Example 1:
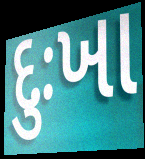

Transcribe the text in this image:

દુઃખા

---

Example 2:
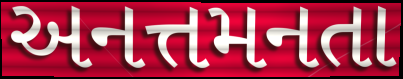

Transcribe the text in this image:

અનત્તમનતા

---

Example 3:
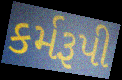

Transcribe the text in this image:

કર્મરૂપી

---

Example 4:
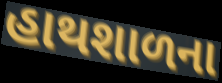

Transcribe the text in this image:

હાથશાળના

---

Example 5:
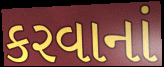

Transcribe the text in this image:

કરવાનાં